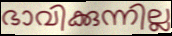
ഭാവിക്കുന്നില്ല